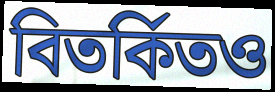
বিতর্কিতও